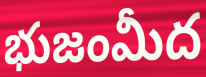
భుజంమీద